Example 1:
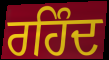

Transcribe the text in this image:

ਰਹਿੰਦ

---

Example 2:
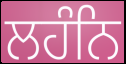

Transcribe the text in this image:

ਲਹੰਨਿ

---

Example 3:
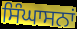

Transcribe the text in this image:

ਸਿੰਘਾਸਨਾਂ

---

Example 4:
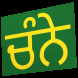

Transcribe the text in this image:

ਚੰਨੇ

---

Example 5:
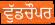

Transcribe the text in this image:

ਵੁੱਡਚੌਪਰ